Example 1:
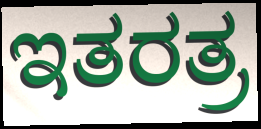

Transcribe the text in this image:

ಇತರತ್ರ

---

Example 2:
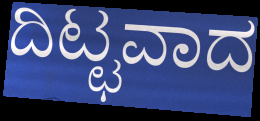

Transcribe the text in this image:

ದಿಟ್ಟವಾದ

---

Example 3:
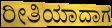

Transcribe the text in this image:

ರೀತಿಯಾದಾಗ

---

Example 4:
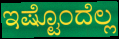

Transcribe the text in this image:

ಇಷ್ಟೊಂದೆಲ್ಲ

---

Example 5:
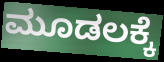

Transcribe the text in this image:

ಮೂಡಲಕ್ಕೆ